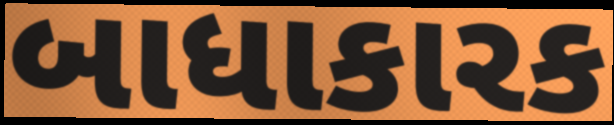
બાધાકારક